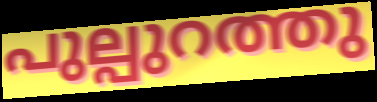
പുല്പുറത്തു